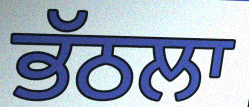
ਭੱਠਲਾ